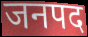
जनपद